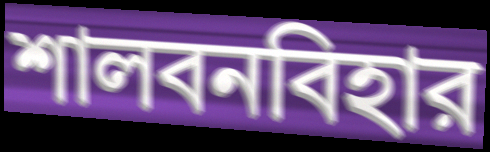
শালবনবিহার